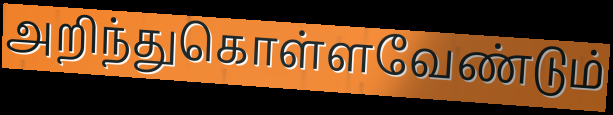
அறிந்துகொள்ளவேண்டும்